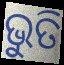
ଭୁତି